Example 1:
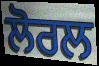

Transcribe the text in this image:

ਲੋਰਲ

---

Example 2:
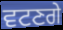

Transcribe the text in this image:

ਵਟਣਗੇ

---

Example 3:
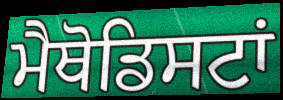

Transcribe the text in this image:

ਮੈਥੋਡਿਸਟਾਂ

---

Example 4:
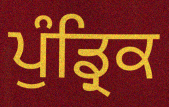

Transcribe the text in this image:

ਪੁੰਡ੍ਰਿਕ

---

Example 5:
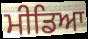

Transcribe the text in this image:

ਮੀਡਿਆ